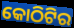
କୋଠିଟିର